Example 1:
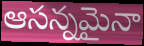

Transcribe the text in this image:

ఆసన్నమైనా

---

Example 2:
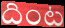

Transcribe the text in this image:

దింట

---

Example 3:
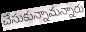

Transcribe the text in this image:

చేసుకున్నామన్నారు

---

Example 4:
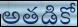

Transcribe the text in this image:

అతడికో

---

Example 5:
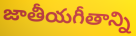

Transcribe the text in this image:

జాతీయగీతాన్ని